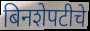
बिनशेपटीचे